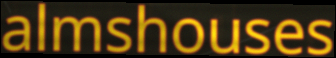
almshouses